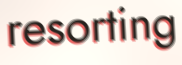
resorting